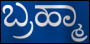
ಬ್ರಹ್ಮಾ